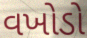
વખોડો